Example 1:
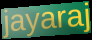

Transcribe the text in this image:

jayaraj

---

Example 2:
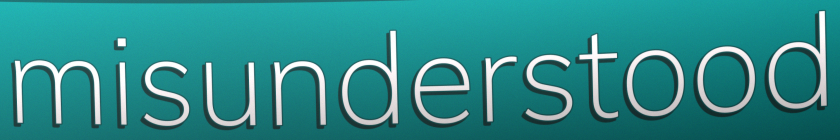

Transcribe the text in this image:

misunderstood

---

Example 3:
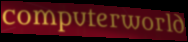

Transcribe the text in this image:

computerworld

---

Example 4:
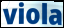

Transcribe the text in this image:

viola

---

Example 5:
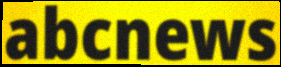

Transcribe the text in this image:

abcnews